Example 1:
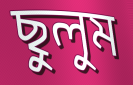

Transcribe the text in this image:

ছুলুম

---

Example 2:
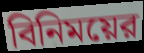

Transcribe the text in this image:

বিনিময়ের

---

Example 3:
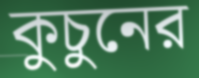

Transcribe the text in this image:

কুচুনের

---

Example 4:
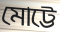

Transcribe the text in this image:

মোট্টে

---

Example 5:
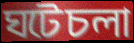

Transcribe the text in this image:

ঘটেচলা